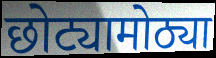
छोट्यामोठ्या